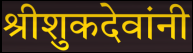
श्रीशुकदेवांनी